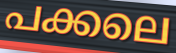
പക്കലെ